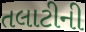
તલાટીની